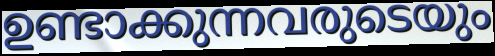
ഉണ്ടാക്കുന്നവരുടെയും